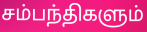
சம்பந்திகளும்